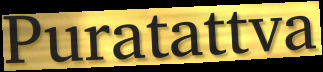
Puratattva